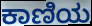
ಕಾಣಿಯ